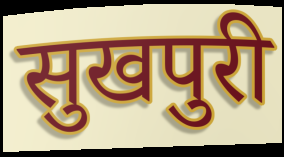
सुखपुरी